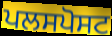
ਪਲਸਪੋਸਟ